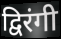
द्विरंगी